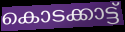
കൊടക്കാട്ട്